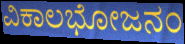
ವಿಕಾಲಭೋಜನಂ